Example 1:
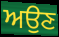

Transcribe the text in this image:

ਅਉਣ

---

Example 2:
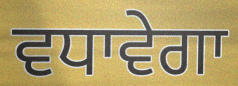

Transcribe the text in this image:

ਵਧਾਵੇਗਾ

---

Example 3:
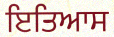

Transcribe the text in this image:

ਇਤਿਆਸ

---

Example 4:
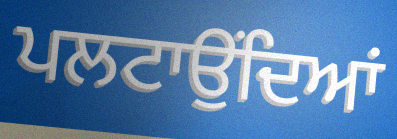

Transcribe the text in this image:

ਪਲਟਾਉਂਦਿਆਂ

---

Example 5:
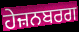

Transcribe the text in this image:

ਹੇਜ਼ਨਬਰਗ